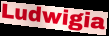
Ludwigia